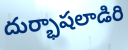
దుర్భాషలాడిరి